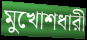
মুখোশধারী